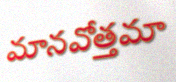
మానవోత్తమా